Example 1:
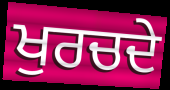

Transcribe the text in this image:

ਖੁਰਚਦੇ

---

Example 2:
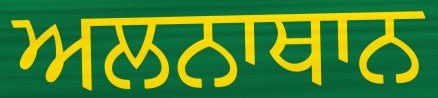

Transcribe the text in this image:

ਅਲਨਾਥਾਨ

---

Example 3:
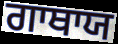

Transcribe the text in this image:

ਗਾਥਾਯ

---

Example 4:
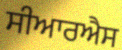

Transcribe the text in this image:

ਸੀਆਰਐਸ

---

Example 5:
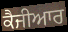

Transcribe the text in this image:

ਕੈਜੀਆਰ